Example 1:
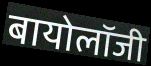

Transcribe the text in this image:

बायोलॉजी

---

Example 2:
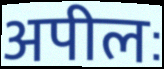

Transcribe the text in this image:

अपीलः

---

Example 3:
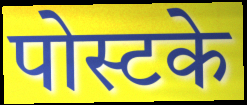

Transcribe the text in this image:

पोस्टके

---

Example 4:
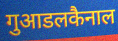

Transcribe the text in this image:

गुआडलकैनाल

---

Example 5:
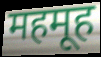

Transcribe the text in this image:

महमूह